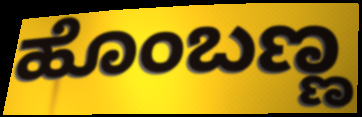
ಹೊಂಬಣ್ಣ